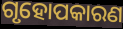
ଗୃହୋପକାରଣ